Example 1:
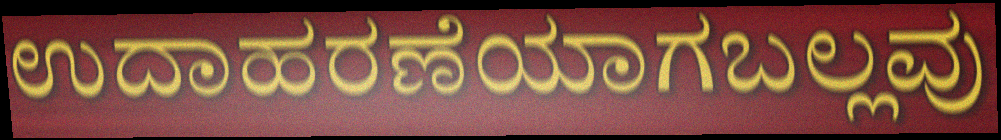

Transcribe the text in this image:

ಉದಾಹರಣೆಯಾಗಬಲ್ಲವು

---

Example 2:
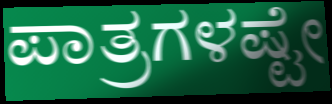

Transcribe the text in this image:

ಪಾತ್ರಗಳಷ್ಟೇ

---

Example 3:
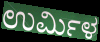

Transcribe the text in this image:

ಉರ್ಮಿಳ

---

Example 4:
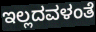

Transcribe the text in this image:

ಇಲ್ಲದವಳಂತೆ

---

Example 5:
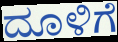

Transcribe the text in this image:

ದೂಳಿಗೆ